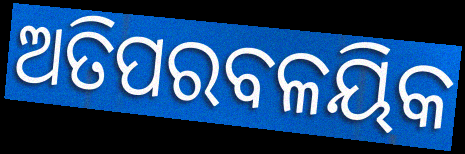
ଅତିପରବଳୟିକ